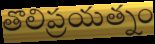
తొలిప్రయత్నం